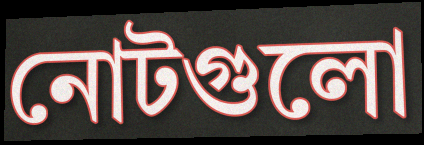
নোটগুলো